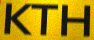
KTH